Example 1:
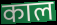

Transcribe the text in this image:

काल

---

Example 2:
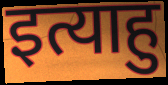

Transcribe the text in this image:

इत्याहु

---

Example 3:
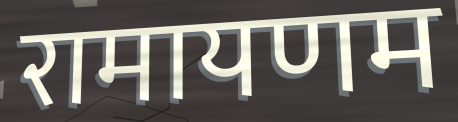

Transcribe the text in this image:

रामायणम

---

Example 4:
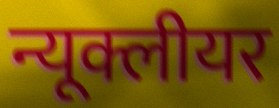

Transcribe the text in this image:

न्यूक्लीयर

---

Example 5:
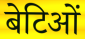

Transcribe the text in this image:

बेटिओं